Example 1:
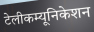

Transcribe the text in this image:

टेलीकम्यूनिकेशन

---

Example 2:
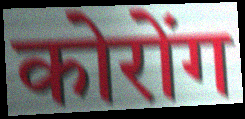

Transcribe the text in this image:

कोरोंग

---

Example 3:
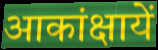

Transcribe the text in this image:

आकांक्षायें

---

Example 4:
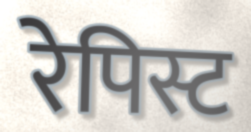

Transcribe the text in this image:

रेपिस्ट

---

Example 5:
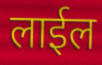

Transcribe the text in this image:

लाईल